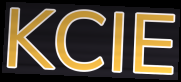
KCIE